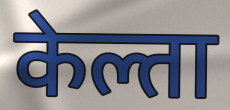
केल्ता